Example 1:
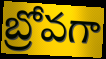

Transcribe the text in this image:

బ్రోవగా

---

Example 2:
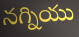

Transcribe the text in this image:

నగ్నియు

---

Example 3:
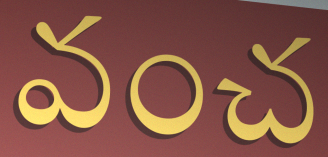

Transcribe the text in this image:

వంచ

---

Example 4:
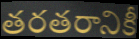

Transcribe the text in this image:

తరతరానికీ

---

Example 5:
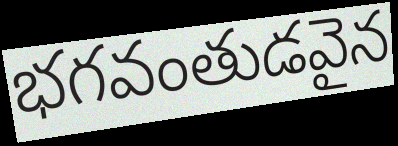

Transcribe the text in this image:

భగవంతుడవైన